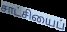
சாட்சியைப்